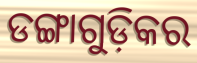
ଡଙ୍ଗାଗୁଡ଼ିକର